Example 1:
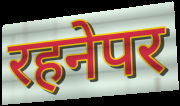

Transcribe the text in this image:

रहनेपर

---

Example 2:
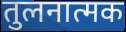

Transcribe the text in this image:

तुलनात्मक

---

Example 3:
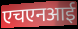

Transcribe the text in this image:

एचएनआई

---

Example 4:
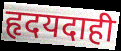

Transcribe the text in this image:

हृदयदाही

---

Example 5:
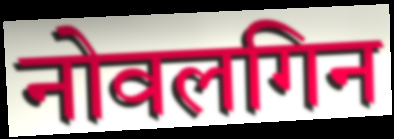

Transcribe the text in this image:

नोवलगिन